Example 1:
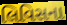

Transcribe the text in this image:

લિવિસના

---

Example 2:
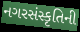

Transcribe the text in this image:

નગરસંસ્કૃતિની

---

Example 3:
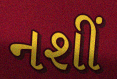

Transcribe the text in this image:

નશીં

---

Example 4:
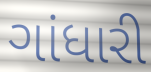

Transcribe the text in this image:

ગાંધારી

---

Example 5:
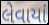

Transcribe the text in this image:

લેવાયાં